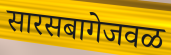
सारसबागेजवळ